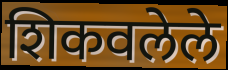
शिकवलेले